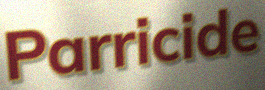
Parricide